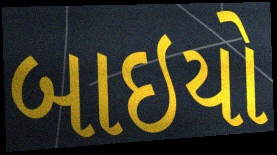
બાઇયો